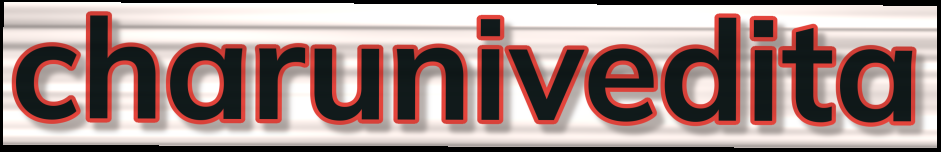
charunivedita